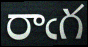
రాఁగ